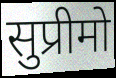
सुप्रीमो